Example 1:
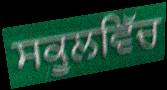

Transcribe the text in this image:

ਸਕੂਲਵਿੱਚ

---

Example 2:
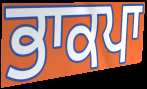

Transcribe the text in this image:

ਭਾਕਪਾ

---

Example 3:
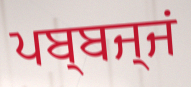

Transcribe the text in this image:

ਪਬ੍ਬਜ੍ਜਂ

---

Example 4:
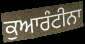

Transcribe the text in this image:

ਕੁਆਰੰਟੀਨਾ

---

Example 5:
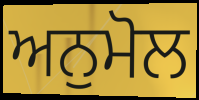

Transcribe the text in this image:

ਅਨੁਮੋਲ